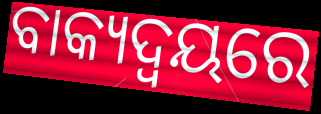
ବାକ୍ୟଦ୍ଵୟରେ